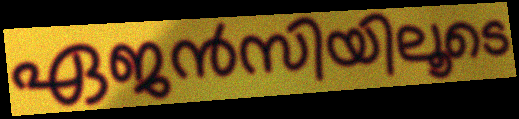
ഏജൻസിയിലൂടെ